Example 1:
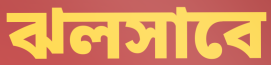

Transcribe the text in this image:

ঝলসাবে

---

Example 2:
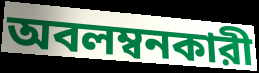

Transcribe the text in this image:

অবলম্বনকারী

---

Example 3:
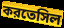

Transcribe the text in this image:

করতেসিল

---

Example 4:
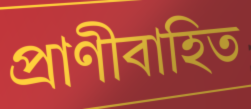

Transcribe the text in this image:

প্রাণীবাহিত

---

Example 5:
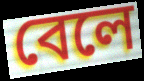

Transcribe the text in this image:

বেলে